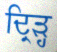
ਦ੍ਰਿੜ੍ਹ